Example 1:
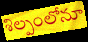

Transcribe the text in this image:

శిల్పంలోనూ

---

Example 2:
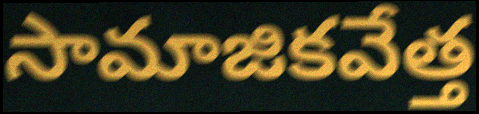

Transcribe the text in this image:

సామాజికవేత్త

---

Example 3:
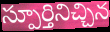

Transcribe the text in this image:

స్పూర్తినిచ్చిన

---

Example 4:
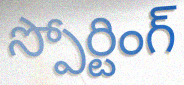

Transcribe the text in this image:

స్పోర్టింగ్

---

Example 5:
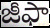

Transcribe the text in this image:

జీఫా